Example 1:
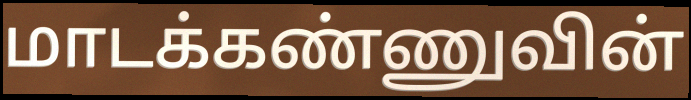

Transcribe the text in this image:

மாடக்கண்ணுவின்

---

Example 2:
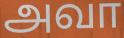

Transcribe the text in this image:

அவா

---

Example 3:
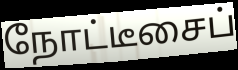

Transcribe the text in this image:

நோட்டீசைப்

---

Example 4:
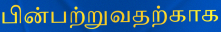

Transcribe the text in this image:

பின்பற்றுவதற்காக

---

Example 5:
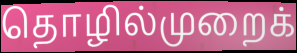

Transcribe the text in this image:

தொழில்முறைக்